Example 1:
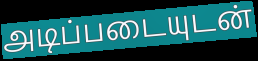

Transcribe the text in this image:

அடிப்படையுடன்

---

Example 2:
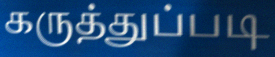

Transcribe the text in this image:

கருத்துப்படி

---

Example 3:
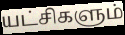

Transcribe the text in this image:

யட்சிகளும்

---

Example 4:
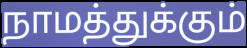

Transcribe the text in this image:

நாமத்துக்கும்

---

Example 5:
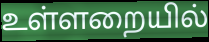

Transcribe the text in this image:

உள்ளறையில்